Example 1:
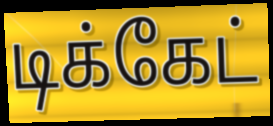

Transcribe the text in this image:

டிக்கேட்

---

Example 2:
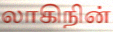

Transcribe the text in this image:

லாகிநின்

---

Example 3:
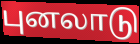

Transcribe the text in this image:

புனலாடு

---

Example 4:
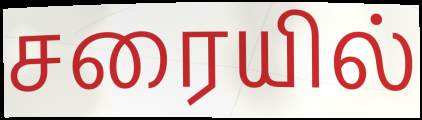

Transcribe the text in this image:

சரையில்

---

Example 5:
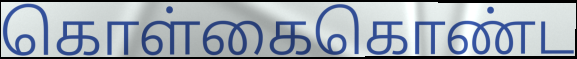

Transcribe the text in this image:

கொள்கைகொண்ட